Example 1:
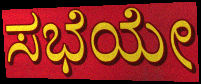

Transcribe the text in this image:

ಸಭೆಯೇ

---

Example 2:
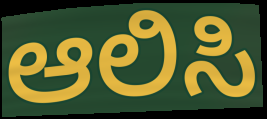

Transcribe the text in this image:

ಆಲಿಸಿ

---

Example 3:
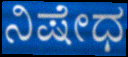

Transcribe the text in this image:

ನಿಷೇಧ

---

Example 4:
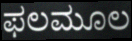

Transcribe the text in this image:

ಫಲಮೂಲ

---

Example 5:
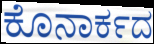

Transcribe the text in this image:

ಕೊನಾರ್ಕದ